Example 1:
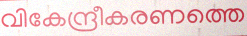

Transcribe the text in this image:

വികേന്ദ്രീകരണത്തെ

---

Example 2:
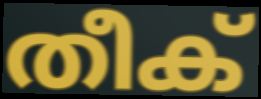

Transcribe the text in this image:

തീക്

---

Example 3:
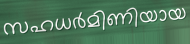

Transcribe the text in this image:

സഹധർമിണിയായ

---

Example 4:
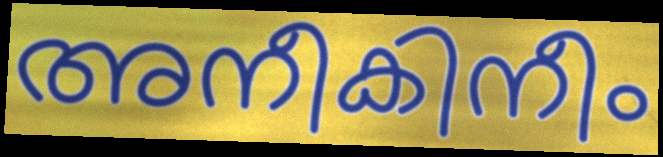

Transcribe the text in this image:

അനീകിനീം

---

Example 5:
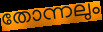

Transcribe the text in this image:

തോന്നലും